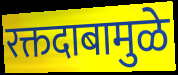
रक्तदाबामुळे